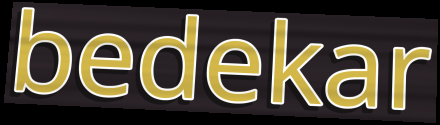
bedekar